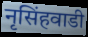
नृसिंहवाडी